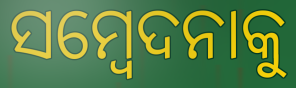
ସମ୍ବେଦନାକୁ